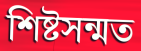
শিষ্টসন্মত